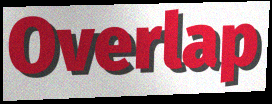
Overlap